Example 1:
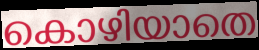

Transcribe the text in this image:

കൊഴിയാതെ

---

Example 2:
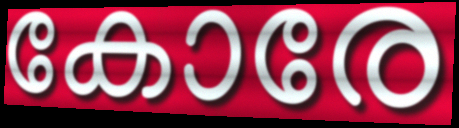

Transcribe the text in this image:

കോരേ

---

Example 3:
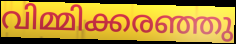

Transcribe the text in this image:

വിമ്മിക്കരഞ്ഞു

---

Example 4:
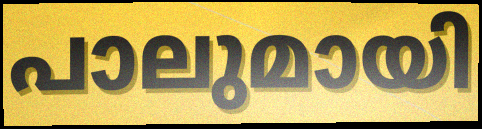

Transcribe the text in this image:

പാലുമായി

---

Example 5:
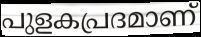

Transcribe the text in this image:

പുളകപ്രദമാണ്